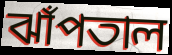
ঝাঁপতাল